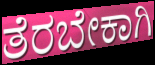
ತೆರಬೇಕಾಗಿ